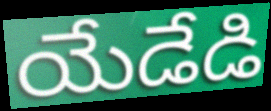
యేడేడి